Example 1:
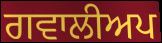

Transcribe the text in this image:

ਗਵਾਲੀਅਪ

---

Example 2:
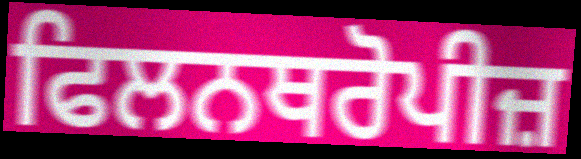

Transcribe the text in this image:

ਫਿਲਨਥਰੋਪੀਜ਼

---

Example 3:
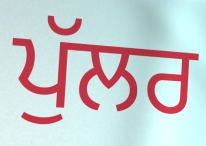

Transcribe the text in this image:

ਪੁੱਲਰ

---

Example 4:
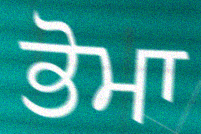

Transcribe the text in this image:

ਭੋਮਾ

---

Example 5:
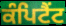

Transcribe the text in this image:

ਕੰਪਿਟੈਂਟ